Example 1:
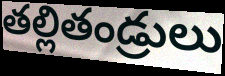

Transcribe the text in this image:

తల్లితండ్రులు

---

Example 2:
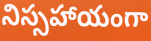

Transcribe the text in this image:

నిస్సహాయంగా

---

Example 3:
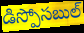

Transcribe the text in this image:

డిస్పోసబుల్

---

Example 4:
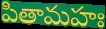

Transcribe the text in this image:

పితామహః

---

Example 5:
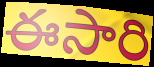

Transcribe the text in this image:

ఈసారి